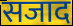
सजाद